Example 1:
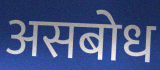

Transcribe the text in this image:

असबोध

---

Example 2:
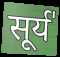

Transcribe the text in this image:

सूर्य॑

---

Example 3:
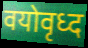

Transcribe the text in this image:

वयोवृध्द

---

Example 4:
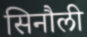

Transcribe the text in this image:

सिनौली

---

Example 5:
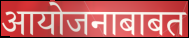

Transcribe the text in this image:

आयोजनाबाबत